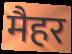
मैहर